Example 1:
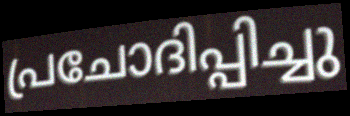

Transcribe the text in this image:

പ്രചോദിപ്പിച്ചു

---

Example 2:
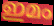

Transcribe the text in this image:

ഇമം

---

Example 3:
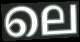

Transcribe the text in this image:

ലെ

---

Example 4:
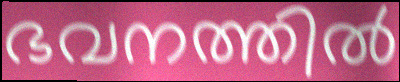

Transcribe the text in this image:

ഭവനത്തിൽ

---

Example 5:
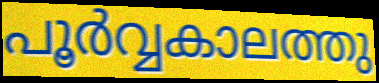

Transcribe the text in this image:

പൂർവ്വകാലത്തു